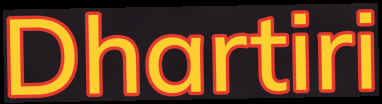
Dhartiri